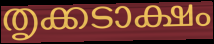
തൃക്കടാക്ഷം